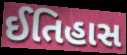
ઈતિહાસ